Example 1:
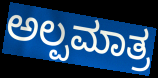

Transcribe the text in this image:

ಅಲ್ಪಮಾತ್ರ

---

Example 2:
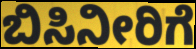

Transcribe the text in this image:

ಬಿಸಿನೀರಿಗೆ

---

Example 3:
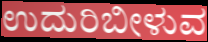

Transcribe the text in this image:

ಉದುರಿಬೀಳುವ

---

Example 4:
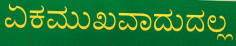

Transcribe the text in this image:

ಏಕಮುಖವಾದುದಲ್ಲ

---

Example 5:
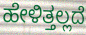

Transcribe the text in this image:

ಹೇಳಿತ್ತಲ್ಲದೆ